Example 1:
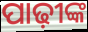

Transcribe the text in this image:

ପାଢ଼ୀଙ୍କ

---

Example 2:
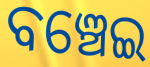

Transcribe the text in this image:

ବଞ୍ଚେଇ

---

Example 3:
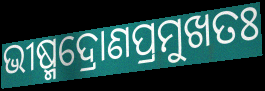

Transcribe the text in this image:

ଭୀଷ୍ମଦ୍ରୋଣପ୍ରମୁଖତଃ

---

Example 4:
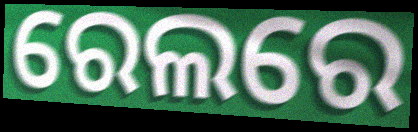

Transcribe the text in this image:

ରେଲରେ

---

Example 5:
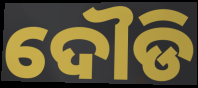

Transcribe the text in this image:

ଦୌଡି